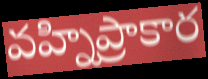
వహ్నిప్రాకార